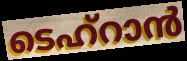
ടെഹ്റാൻ